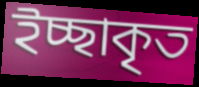
ইচ্ছাকৃত